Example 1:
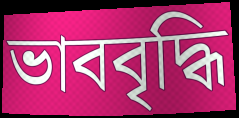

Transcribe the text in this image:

ভাববৃদ্ধি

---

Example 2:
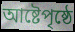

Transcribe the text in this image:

আষ্টেপৃষ্ঠে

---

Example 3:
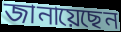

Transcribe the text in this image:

জানায়েছেন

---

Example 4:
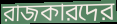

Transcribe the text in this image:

রাজকারদের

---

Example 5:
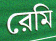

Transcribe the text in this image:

রেমি